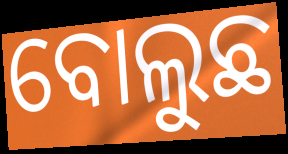
ବୋଲୁଛ